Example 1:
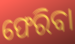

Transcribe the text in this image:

ଫେରିବା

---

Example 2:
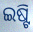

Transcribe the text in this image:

ଇଷ୍ଟି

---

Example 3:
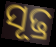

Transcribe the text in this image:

ସୂଢ୍ର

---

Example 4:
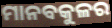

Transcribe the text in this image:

ମାନବକୁଳର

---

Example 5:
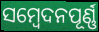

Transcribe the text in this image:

ସମ୍ବେଦନପୂର୍ଣ୍ଣ